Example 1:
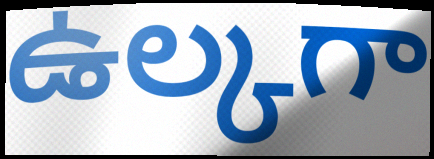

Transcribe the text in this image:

ఉల్కగా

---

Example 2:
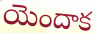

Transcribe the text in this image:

యెందాక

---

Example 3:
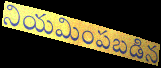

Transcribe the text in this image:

నియమింపబడిన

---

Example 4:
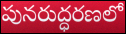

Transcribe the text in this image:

పునరుద్ధరణలో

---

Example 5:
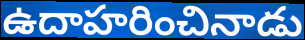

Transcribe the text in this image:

ఉదాహరించినాడు